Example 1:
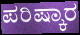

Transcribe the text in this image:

ಪರಿಷ್ಕಾರ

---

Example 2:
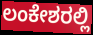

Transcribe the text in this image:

ಲಂಕೇಶರಲ್ಲಿ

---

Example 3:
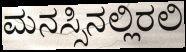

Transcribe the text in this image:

ಮನಸ್ಸಿನಲ್ಲಿರಲಿ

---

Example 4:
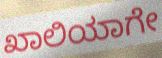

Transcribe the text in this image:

ಖಾಲಿಯಾಗೇ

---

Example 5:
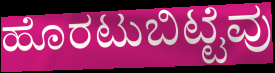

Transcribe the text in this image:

ಹೊರಟುಬಿಟ್ಟೆವು